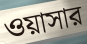
ওয়াসার